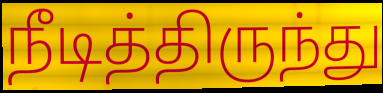
நீடித்திருந்து